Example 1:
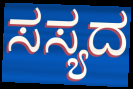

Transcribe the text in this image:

ಸಸ್ಯದ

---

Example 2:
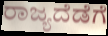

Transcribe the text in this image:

ರಾಜ್ಯದೆಡೆಗೆ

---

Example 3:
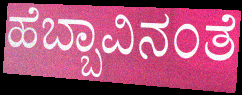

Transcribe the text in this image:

ಹೆಬ್ಬಾವಿನಂತೆ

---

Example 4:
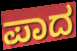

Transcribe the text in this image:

ಪಾದ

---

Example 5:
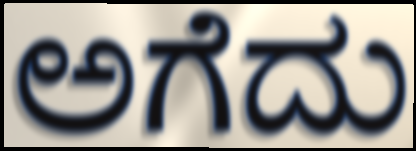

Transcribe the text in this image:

ಅಗೆದು